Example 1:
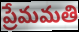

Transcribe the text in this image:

ప్రేమమతి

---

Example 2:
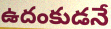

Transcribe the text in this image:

ఉదంకుడనే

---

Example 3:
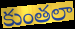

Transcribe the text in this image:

కుంతలా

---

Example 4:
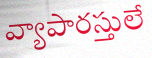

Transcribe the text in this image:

వ్యాపారస్తులే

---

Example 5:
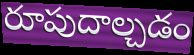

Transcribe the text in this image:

రూపుదాల్చడం